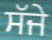
ਸੱਜੇ